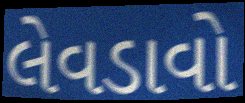
લેવડાવો